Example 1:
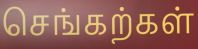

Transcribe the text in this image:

செங்கற்கள்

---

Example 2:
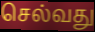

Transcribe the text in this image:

செல்வது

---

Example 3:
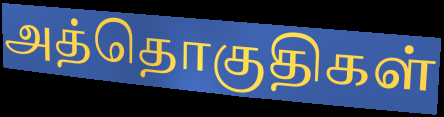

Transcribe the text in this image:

அத்தொகுதிகள்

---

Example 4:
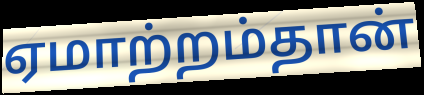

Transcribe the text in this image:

ஏமாற்றம்தான்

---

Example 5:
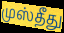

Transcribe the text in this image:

முஸ்தீது